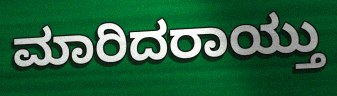
ಮಾರಿದರಾಯ್ತು